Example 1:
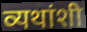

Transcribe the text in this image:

व्यथांशी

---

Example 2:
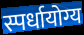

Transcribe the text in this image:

स्पर्धायोग्य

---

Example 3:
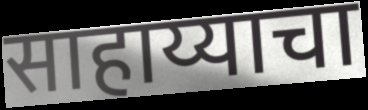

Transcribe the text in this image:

साहाय्याचा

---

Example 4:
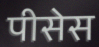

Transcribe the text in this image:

पीसेस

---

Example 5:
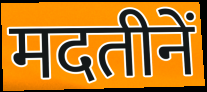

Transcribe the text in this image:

मदतीनें